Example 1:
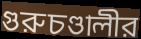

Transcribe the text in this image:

গুরুচণ্ডালীর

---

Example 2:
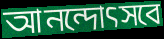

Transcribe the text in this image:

আনন্দোৎসবে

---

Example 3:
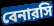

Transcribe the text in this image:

বেনারসি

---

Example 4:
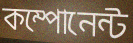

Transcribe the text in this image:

কম্পোনেন্ট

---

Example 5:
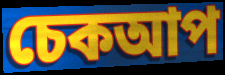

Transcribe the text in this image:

চেকআপ